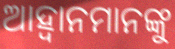
ଆହ୍ୱାନମାନଙ୍କୁ